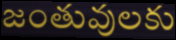
జంతువులకు